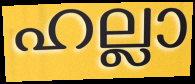
ഹല്ലാ